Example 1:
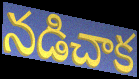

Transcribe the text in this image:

నడిచాక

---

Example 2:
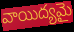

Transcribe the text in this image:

వాయిద్యమై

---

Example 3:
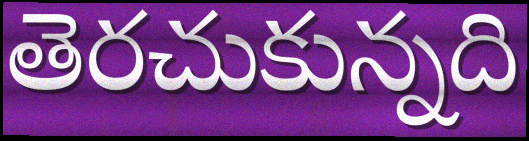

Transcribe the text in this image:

తెరచుకున్నది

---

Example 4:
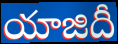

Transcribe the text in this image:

యాజిదీ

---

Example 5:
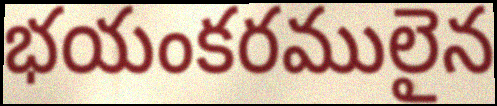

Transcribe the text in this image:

భయంకరములైన